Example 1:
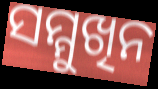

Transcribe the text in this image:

ସମ୍ମୁଖିନ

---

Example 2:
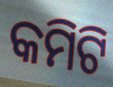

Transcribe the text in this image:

କମିଟି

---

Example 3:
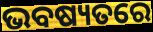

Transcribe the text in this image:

ଭବଷ୍ୟତରେ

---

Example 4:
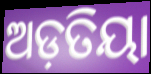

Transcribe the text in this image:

ଅଡ଼ତିୟା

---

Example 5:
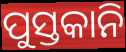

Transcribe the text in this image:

ପୁସ୍ତକାନି